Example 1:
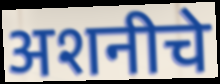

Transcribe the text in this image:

अशनीचे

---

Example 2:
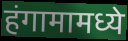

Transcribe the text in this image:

हंगामामध्ये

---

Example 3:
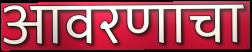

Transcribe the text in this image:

आवरणाचा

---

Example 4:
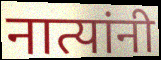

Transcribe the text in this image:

नात्यांनी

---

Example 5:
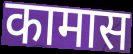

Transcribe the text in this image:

कामास